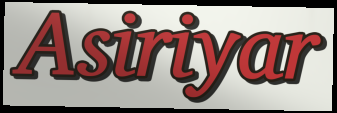
Asiriyar